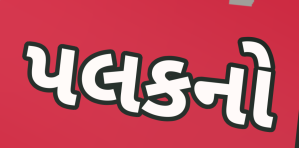
પલકનો